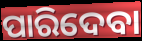
ପାରିଦେବା